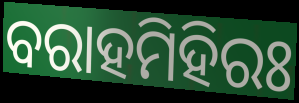
ବରାହମିହିରଃ